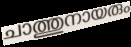
ചാത്തുനായരും